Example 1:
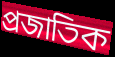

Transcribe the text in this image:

প্ৰজাতিক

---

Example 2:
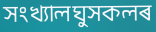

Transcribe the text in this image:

সংখ্যালঘুসকলৰ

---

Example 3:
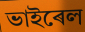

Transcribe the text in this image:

ভাইৰেল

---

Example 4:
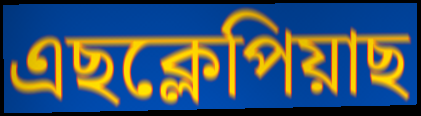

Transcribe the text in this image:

এছক্লেপিয়াছ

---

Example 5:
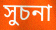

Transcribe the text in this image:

সুচনা